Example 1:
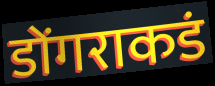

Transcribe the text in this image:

डोंगराकडं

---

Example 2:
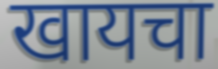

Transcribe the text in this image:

खायचा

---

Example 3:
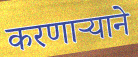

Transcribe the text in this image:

करणाऱ्याने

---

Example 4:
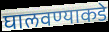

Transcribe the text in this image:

घालवण्याकडे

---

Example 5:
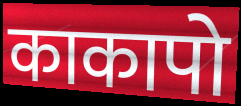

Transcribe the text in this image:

काकापो